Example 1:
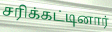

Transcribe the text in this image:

சரிக்கட்டினார்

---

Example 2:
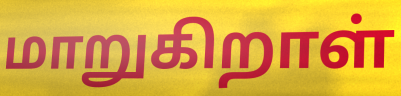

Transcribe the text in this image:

மாறுகிறாள்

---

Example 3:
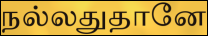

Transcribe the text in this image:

நல்லதுதானே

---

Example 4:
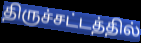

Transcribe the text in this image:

திருச்சட்டத்தில்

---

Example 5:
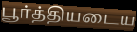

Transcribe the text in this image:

பூர்த்தியடைய